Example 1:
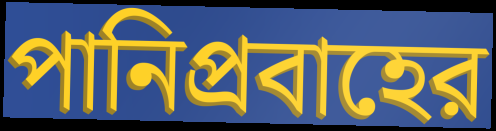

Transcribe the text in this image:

পানিপ্রবাহের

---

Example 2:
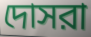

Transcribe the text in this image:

দোসরা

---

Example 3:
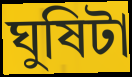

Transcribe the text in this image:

ঘুষিটা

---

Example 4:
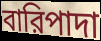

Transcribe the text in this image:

বারিপাদা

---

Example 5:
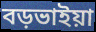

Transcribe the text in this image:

বড়ভাইয়া